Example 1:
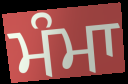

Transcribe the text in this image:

ਮੰਮਾ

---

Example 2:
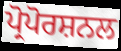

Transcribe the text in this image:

ਪ੍ਰੋਪੋਰਸ਼ਨਲ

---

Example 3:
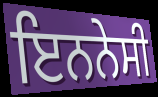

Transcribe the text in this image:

ਇਨਨੇਸੀ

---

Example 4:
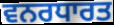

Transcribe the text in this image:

ਵਨਰਧਾਰਤ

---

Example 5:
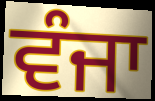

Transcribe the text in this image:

ਵੰਜਾ